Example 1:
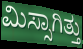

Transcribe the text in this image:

ಮಿಸ್ಸಾಗಿತ್ತು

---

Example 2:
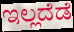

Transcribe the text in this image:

ಇಲ್ಲದೆಡೆ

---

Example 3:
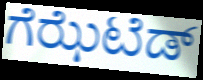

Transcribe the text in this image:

ಗೆಝೆಟೆಡ್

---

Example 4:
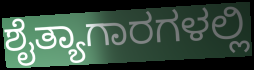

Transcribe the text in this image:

ಶೈತ್ಯಾಗಾರಗಳಲ್ಲಿ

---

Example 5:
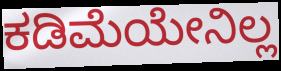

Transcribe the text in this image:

ಕಡಿಮೆಯೇನಿಲ್ಲ